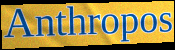
Anthropos